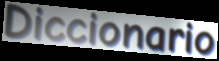
Diccionario